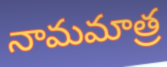
నామమాత్ర